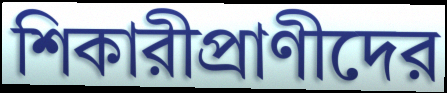
শিকারীপ্রাণীদের